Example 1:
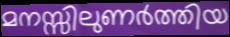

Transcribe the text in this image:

മനസ്സിലുണർത്തിയ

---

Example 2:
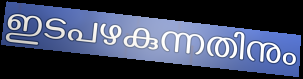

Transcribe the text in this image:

ഇടപഴകുന്നതിനും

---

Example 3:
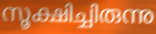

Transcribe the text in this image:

സൂക്ഷിച്ചിരുന്നു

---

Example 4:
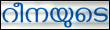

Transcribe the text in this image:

റീനയുടെ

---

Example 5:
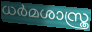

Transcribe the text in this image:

ധർമശാസ്ത്ര